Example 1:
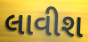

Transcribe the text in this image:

લાવીશ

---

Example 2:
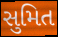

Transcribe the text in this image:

સુમિત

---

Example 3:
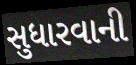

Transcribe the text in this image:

સુધારવાની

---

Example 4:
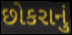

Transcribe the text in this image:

છોકરાનું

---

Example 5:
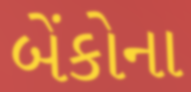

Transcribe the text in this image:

બેંકોના